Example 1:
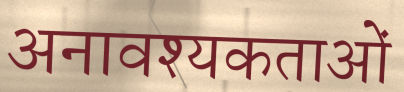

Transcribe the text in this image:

अनावश्यकताओं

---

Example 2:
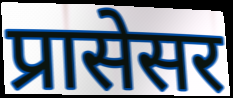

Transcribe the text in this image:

प्रासेसर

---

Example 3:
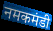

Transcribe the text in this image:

नमकमंडी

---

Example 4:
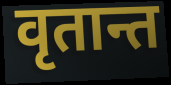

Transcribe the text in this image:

वृतान्त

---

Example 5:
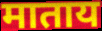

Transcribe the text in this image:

माताय